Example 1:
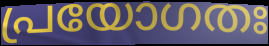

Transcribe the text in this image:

പ്രയോഗതഃ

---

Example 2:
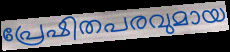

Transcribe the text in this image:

പ്രേഷിതപരവുമായ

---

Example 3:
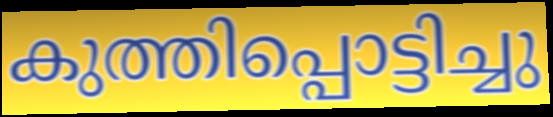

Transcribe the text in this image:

കുത്തിപ്പൊട്ടിച്ചു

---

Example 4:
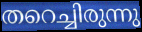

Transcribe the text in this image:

തറെച്ചിരുന്നു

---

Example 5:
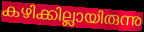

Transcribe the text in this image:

കഴിക്കില്ലായിരുന്നു